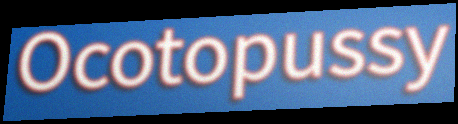
Ocotopussy